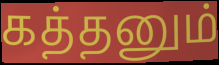
கத்தனும்